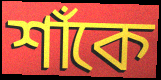
শাঁকে